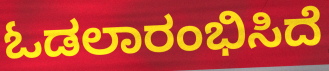
ಓಡಲಾರಂಭಿಸಿದೆ